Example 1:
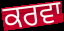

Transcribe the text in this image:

ਕਰਵਾ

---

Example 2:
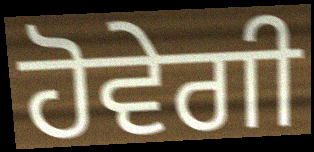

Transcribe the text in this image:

ਹੋਵੇਗੀ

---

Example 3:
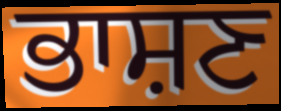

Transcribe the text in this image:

ਭਾਸ਼ਣ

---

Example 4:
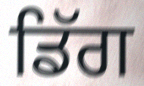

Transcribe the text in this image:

ਡਿੱਗ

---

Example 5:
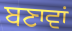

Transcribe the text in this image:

ਬਣਾਵਾਂ